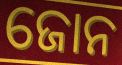
ଜୋନ